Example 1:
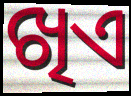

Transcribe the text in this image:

ଖିଏ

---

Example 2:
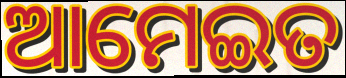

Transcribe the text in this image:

ଆମେଇତ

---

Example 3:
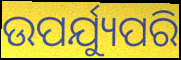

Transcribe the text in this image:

ଉପର୍ଯ୍ୟୁପରି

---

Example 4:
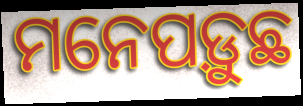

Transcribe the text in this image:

ମନେପଡ଼ୁଛ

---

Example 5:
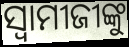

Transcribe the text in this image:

ସ୍ଵାମୀଜୀଙ୍କୁ